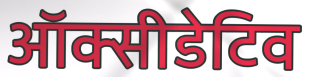
ऑक्सीडेटिव